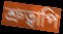
শ্রুত্বাপি